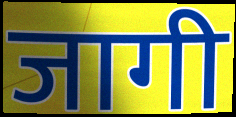
जागी